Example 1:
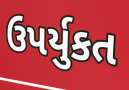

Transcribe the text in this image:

ઉપર્યુકત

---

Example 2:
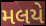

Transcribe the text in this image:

મલયે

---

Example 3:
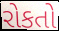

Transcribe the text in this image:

રોકતો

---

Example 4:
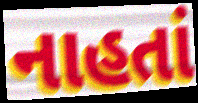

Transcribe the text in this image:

નાહતાં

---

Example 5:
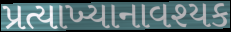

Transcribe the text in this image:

પ્રત્યાખ્યાનાવશ્યક